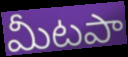
మీటపా